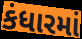
કંધારમાં